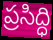
ప్రసిద్ధి